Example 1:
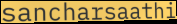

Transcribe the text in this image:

sancharsaathi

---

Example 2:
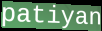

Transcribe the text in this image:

patiyan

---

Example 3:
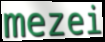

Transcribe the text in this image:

mezei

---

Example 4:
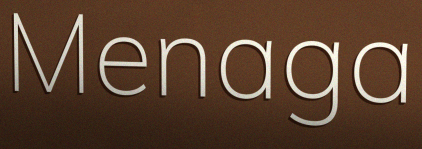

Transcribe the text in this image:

Menaga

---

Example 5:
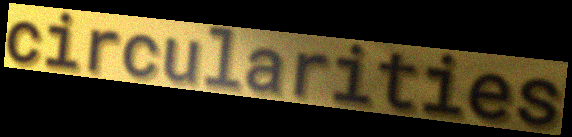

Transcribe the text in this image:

circularities